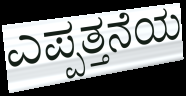
ಎಪ್ಪತ್ತನೆಯ